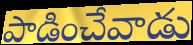
పాడించేవాడు